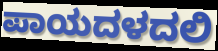
ಪಾಯದಳದಲಿ